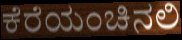
ಕೆರೆಯಂಚಿನಲಿ